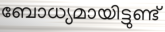
ബോധ്യമായിട്ടുണ്ട്